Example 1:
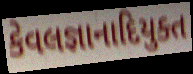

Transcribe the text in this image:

કેવલજ્ઞાનાદિયુક્ત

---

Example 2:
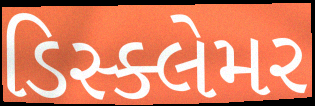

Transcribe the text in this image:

ડિસ્ક્લેમર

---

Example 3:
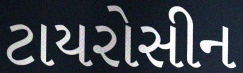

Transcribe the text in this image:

ટાયરોસીન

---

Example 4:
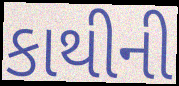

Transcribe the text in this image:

કાથીની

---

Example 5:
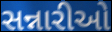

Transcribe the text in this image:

સન્નારીઓ